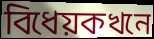
বিধেয়কখনে